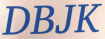
DBJK